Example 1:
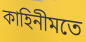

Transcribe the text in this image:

কাহিনীমতে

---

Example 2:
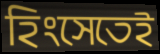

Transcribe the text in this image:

হিংসেতেই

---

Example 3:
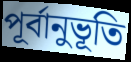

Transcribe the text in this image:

পূর্বানুভূতি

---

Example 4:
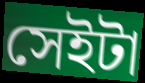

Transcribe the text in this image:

সেইটা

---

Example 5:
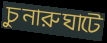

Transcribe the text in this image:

চুনারুঘাটে